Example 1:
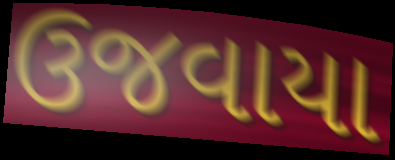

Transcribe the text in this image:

ઉજવાયા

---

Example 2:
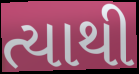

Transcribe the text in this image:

ત્યાથી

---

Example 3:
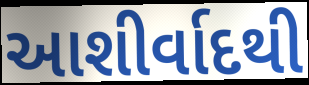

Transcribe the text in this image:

આશીર્વાદથી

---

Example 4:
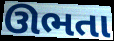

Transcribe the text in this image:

ઊભતા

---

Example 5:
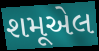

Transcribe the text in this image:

શમૂએલ